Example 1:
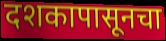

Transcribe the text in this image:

दशकापासूनचा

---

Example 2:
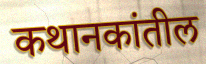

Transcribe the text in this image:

कथानकांतील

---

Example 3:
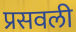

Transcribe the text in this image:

प्रसवली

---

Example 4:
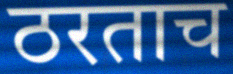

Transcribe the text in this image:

ठरताच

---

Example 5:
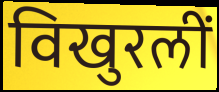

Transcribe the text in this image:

विखुरलीं